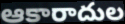
ఆకారాదుల